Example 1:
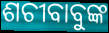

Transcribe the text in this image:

ଶଚୀବାବୁଙ୍କ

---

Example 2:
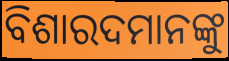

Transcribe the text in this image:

ବିଶାରଦମାନଙ୍କୁ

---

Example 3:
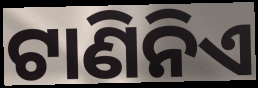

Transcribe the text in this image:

ଟାଣିନିଏ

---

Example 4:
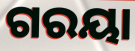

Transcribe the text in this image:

ଗରୟା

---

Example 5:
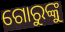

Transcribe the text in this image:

ଗୋରୁଙ୍କୁ